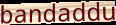
bandaddu